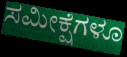
ಸಮೀಕ್ಷೆಗಳೂ